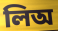
লিঅ